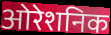
ओरेशनिक